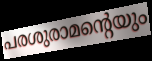
പരശുരാമന്റെയും